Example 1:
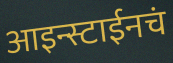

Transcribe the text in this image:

आइन्स्टाईनचं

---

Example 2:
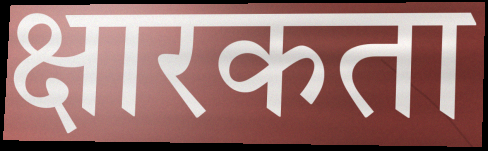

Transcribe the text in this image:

क्षारकता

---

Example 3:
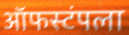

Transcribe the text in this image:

ऑफस्टंपला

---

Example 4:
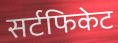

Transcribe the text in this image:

सर्टफिकेट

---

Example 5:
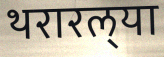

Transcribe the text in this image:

थरारल्या